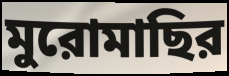
মুরোমাছির